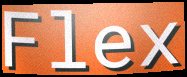
Flex